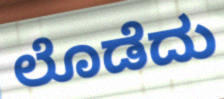
ಲೊಡೆದು